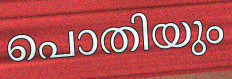
പൊതിയും